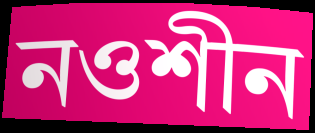
নওশীন